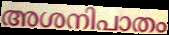
അശനിപാതം